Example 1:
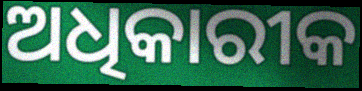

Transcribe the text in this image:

ଅଧିକାରୀକ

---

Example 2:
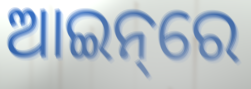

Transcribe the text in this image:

ଆଇନ୍‌ରେ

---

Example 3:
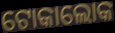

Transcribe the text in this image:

ଟୋକାଲୋକ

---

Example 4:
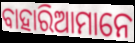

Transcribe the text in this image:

ବାହାରିଆମାନେ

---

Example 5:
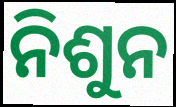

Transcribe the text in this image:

ନିଶୁନ